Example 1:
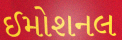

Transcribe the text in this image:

ઈમોશનલ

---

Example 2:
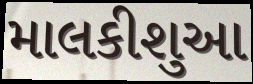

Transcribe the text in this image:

માલકીશુઆ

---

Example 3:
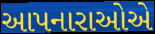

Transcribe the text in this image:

આપનારાઓએ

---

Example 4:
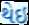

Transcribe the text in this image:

થેઇ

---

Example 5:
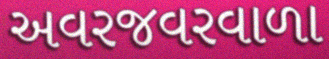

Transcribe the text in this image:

અવરજવરવાળા